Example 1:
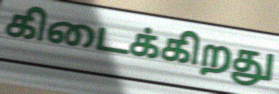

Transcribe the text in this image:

கிடைக்கிறது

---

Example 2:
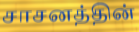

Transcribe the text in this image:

சாசனத்தின்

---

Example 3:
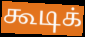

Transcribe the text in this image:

கூடிக்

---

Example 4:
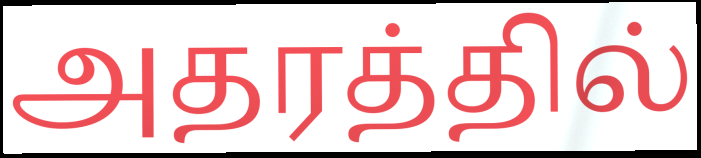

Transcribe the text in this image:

அதரத்தில்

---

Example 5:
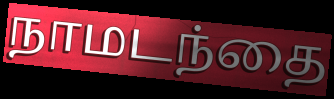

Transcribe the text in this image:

நாமடந்தை